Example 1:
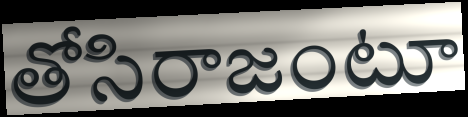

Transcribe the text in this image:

తోసిరాజంటూ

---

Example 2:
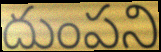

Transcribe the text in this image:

దుంపని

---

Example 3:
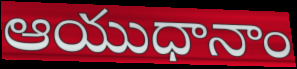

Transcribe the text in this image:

ఆయుధానాం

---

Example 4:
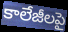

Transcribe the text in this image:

కాలేజీలపై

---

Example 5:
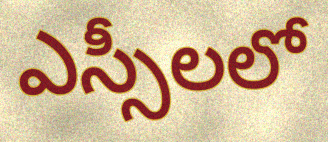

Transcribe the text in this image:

ఎస్సీలలో